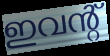
ഇവന്റ്